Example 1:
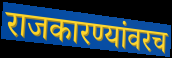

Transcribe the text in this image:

राजकारण्यांवरच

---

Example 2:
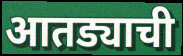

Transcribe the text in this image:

आतड्याची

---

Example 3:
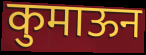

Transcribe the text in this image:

कुमाऊन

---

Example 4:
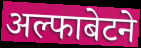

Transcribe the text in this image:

अल्फाबेटने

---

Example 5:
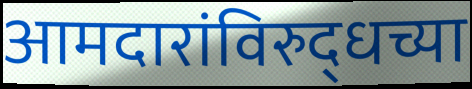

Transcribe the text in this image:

आमदारांविरुद्धच्या